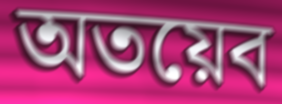
অতয়েব